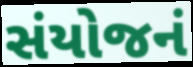
સંયોજનં